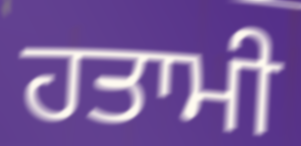
ਹਤਾਮੀ